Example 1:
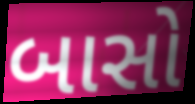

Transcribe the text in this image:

બાસો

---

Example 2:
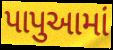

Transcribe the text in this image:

પાપુઆમાં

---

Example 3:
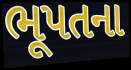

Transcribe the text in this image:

ભૂપતના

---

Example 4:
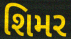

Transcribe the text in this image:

શિમર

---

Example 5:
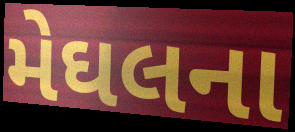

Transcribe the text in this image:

મેઘલના